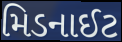
મિડનાઈટ